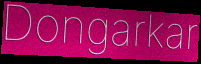
Dongarkar